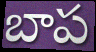
బాప